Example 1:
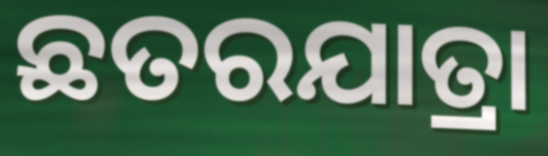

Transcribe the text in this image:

ଛତରଯାତ୍ରା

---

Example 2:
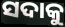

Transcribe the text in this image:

ସଦାକୁ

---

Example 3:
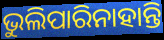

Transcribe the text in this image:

ଭୁଲିପାରିନାହାନ୍ତି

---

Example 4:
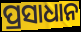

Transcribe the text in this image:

ପ୍ରସାଧାନ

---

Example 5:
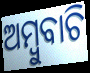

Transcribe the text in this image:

ଅମ୍ବୁବାଚି